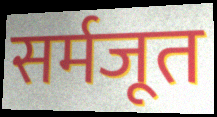
सर्मजूत